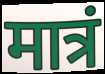
मात्रं